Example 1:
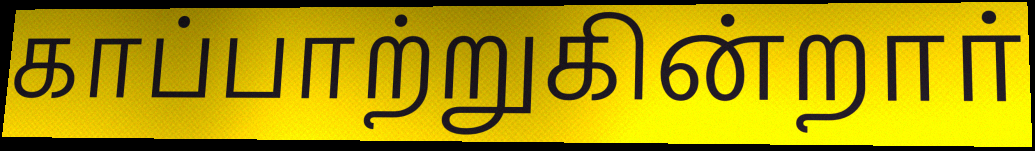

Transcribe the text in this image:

காப்பாற்றுகின்றார்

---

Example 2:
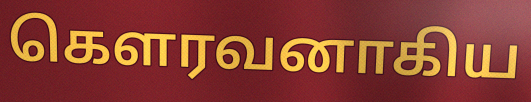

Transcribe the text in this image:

கௌரவனாகிய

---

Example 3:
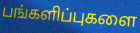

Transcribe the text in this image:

பங்களிப்புகளை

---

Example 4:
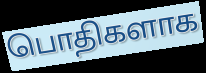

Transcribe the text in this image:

பொதிகளாக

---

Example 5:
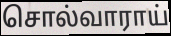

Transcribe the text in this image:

சொல்வாராய்